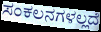
ಸಂಕಲನಗಳಲ್ಲದೆ